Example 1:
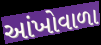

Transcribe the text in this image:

આંખોવાળા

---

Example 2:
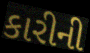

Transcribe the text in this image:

કારીની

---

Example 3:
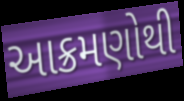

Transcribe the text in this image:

આક્રમણોથી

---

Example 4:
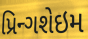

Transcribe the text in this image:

પ્રિન્ગશેઇમ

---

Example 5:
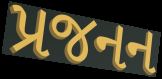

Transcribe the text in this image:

પ્રજનન